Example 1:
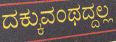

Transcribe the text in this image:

ದಕ್ಕುವಂಥದ್ದಲ್ಲ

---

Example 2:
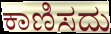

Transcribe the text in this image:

ಕಾಣಿಸದು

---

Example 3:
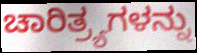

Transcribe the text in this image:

ಚಾರಿತ್ರ್ಯಗಳನ್ನು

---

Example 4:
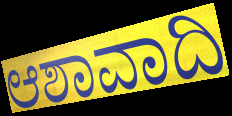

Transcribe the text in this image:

ಆಶಾವಾದಿ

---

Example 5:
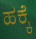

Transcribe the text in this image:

ಹಕ್ಕೆ